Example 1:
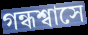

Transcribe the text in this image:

গন্ধশ্বাসে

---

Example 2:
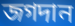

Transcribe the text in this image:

জগদান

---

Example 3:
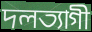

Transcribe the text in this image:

দলত্যাগী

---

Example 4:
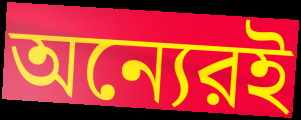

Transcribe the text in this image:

অন্যেরই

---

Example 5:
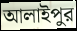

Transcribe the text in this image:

আলাইপুর